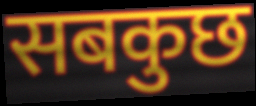
सबकुछ